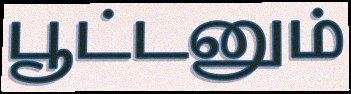
பூட்டனும்